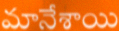
మానేశాయి